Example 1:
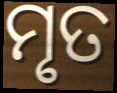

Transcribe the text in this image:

ମୃତ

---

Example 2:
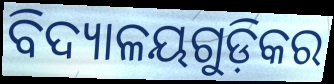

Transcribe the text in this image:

ବିଦ୍ୟାଳୟଗୁଡ଼ିକର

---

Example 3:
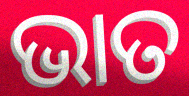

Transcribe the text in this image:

ଭାତ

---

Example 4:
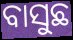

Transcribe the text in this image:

ବାସୁଛ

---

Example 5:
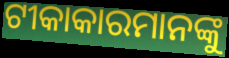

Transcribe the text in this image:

ଟୀକାକାରମାନଙ୍କୁ